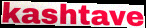
kashtave